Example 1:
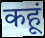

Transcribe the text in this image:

कहूं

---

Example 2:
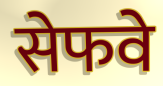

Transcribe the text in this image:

सेफवे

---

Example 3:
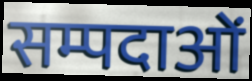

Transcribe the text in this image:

सम्पदाओं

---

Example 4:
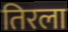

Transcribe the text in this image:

तिरला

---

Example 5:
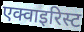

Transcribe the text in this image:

एक्वाइरिस्ट